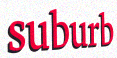
suburb